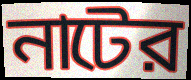
নাটের